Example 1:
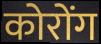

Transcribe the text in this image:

कोरोंग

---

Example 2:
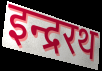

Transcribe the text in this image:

इन्द्ररथ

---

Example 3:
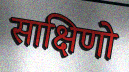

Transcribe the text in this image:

साक्षिणो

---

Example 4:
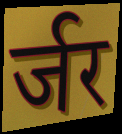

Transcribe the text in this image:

र्जर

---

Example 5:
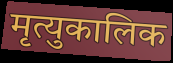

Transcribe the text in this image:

मृत्युकालिक